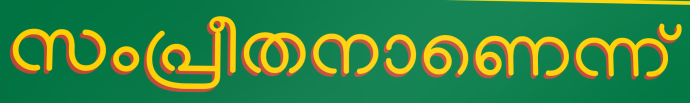
സംപ്രീതനാണെന്ന്